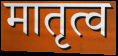
मातृत्व